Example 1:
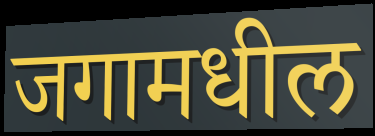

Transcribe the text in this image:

जगामधील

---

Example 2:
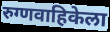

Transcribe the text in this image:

रुग्णवाहिकेला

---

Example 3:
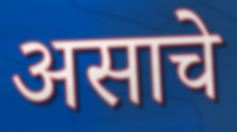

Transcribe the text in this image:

असाचे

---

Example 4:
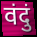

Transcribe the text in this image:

वंदुं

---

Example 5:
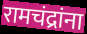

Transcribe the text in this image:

रामचंद्रांना